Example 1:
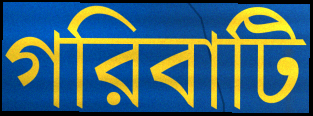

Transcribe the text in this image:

গরিবাটি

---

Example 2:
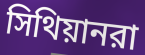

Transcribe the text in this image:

সিথিয়ানরা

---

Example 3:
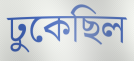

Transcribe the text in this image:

ঢুকেছিল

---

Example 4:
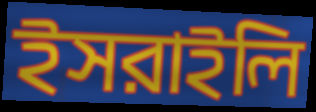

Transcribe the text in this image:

ইসরাইলি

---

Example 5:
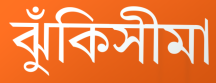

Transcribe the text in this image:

ঝুঁকিসীমা